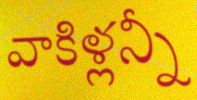
వాకిళ్లన్నీ